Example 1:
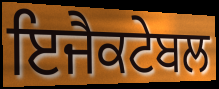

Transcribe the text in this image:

ਇਜੈਕਟੇਬਲ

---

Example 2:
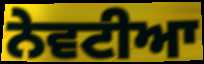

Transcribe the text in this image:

ਨੇਵਟੀਆ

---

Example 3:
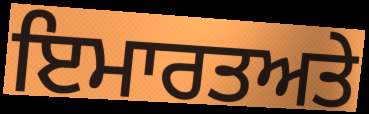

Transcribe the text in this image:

ਇਮਾਰਤਅਤੇ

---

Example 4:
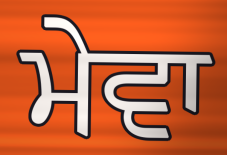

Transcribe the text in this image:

ਮੇਵਾ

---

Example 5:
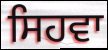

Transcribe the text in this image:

ਸਿਹਵਾ